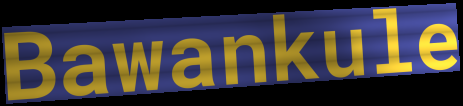
Bawankule